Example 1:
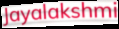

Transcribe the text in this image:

Jayalakshmi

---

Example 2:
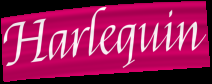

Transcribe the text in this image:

Harlequin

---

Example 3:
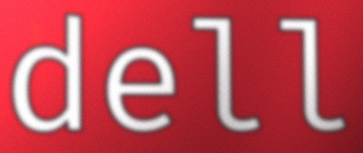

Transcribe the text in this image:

dell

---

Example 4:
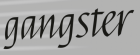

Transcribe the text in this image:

gangster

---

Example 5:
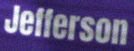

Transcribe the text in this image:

Jefferson